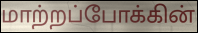
மாற்றப்போக்கின்